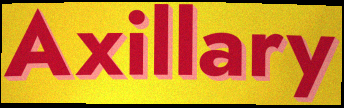
Axillary